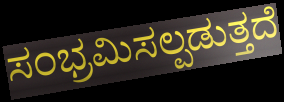
ಸಂಭ್ರಮಿಸಲ್ಪಡುತ್ತದೆ